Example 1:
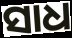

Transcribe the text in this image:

ସାଧ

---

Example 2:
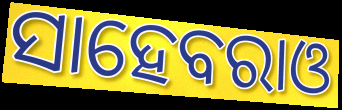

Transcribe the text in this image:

ସାହେବରାଓ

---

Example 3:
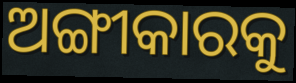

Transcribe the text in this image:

ଅଙ୍ଗୀକାରକୁ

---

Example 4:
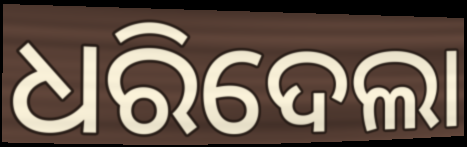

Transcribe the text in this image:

ଧରିଦେଲା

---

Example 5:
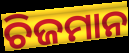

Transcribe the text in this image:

ଚିଜମାନ